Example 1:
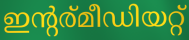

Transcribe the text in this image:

ഇന്റര്മീഡിയറ്റ്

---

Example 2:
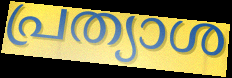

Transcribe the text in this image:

പ്രത്യാശ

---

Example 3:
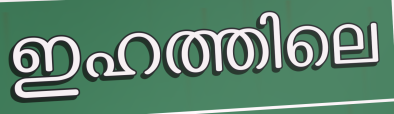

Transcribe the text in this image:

ഇഹത്തിലെ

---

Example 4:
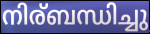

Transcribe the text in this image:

നിര്ബന്ധിച്ചു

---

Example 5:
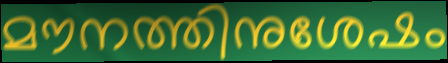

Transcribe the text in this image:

മൗനത്തിനുശേഷം